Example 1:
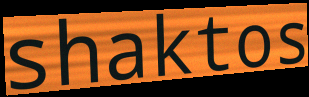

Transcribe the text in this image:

shaktos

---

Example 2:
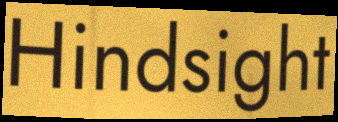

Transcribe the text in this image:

Hindsight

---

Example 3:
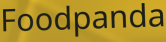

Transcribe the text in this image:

Foodpanda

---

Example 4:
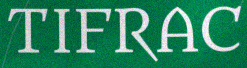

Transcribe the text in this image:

TIFRAC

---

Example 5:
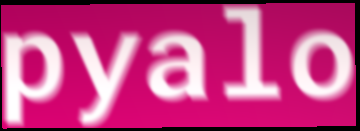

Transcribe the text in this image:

pyalo